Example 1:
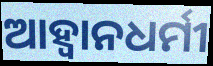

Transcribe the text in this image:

ଆହ୍ବାନଧର୍ମୀ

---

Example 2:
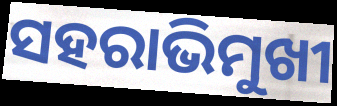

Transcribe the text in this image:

ସହରାଭିମୁଖୀ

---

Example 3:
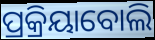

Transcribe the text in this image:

ପ୍ରକ୍ରିୟାବୋଲି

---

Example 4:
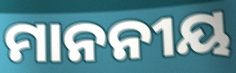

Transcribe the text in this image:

ମାନନୀୟ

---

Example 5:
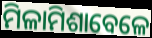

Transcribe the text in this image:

ମିଳାମିଶାବେଳେ